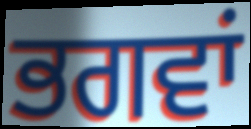
ਭਗਵਾਂ